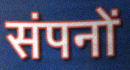
संपनों